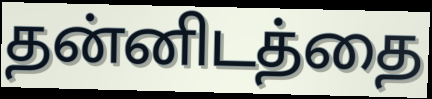
தன்னிடத்தை